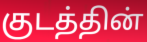
குடத்தின்